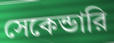
সেকেন্ডারি